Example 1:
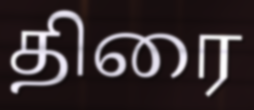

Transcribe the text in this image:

திரை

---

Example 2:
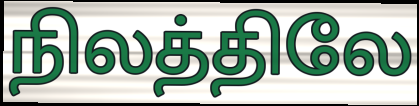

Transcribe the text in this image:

நிலத்திலே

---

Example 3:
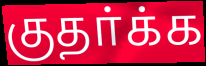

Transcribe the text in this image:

குதர்க்க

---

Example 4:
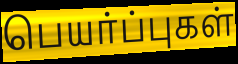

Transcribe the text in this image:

பெயர்ப்புகள்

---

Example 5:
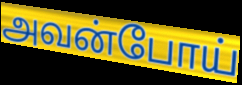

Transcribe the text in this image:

அவன்போய்